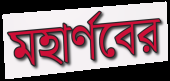
মহার্ণবের